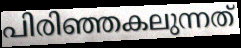
പിരിഞ്ഞകലുന്നത്